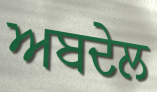
ਅਬਦੇਲ